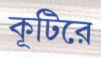
কূটিরে